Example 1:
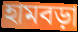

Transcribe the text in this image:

হামবড়া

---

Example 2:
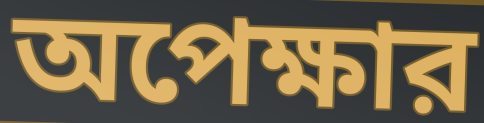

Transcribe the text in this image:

অপেক্ষার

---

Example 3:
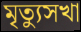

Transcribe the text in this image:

মৃত্যুসখা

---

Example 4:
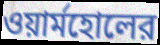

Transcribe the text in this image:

ওয়ার্মহোলের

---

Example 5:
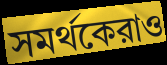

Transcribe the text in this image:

সমর্থকেরাও